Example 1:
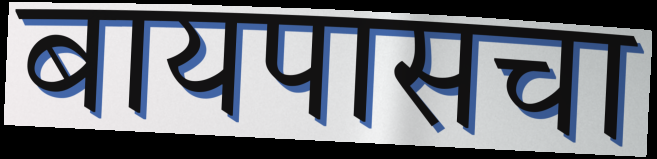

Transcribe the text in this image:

बायपासचा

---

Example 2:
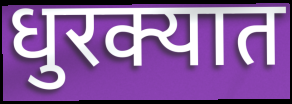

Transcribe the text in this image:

धुरक्यात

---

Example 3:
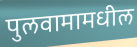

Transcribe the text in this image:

पुलवामामधील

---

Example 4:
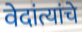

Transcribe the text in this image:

वेदांत्यांचे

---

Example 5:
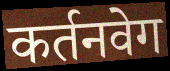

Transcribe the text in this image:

कर्तनवेग